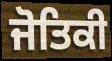
ਜੋਤਿਕੀ